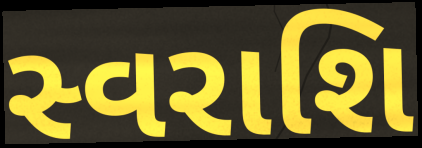
સ્વરાશિ